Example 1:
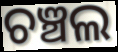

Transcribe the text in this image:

ଚଞ୍ଚଲ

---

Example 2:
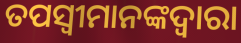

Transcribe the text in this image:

ତପସ୍ୱୀମାନଙ୍କଦ୍ୱାରା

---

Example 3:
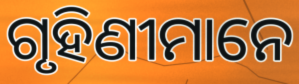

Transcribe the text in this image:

ଗୃହିଣୀମାନେ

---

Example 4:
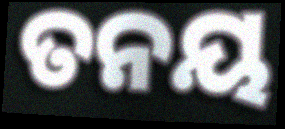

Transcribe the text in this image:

ତନୟ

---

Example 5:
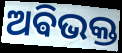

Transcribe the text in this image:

ଅଵିଭକ୍ତ